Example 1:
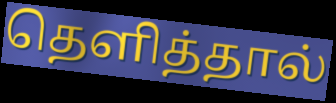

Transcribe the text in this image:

தெளித்தால்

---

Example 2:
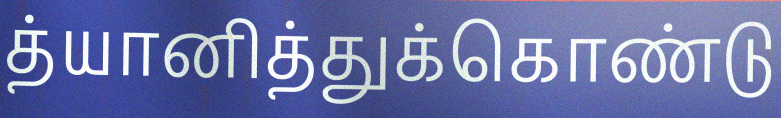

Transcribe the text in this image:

த்யானித்துக்கொண்டு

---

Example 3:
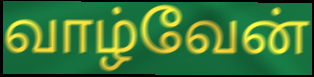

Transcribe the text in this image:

வாழ்வேன்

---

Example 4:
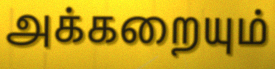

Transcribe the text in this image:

அக்கறையும்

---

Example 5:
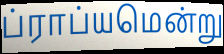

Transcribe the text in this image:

ப்ராப்யமென்று